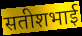
सतीशभाई